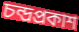
চন্দ্ৰপ্ৰকাশ